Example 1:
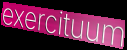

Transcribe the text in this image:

exercituum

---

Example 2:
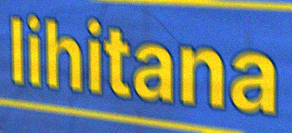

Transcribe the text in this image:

lihitana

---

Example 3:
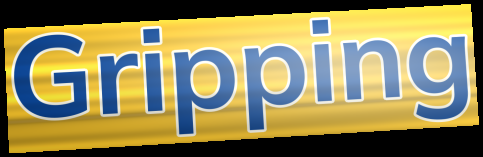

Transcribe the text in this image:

Gripping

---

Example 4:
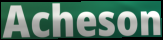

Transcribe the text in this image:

Acheson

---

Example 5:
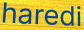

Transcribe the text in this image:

haredi